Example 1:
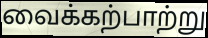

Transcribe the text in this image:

வைக்கற்பாற்று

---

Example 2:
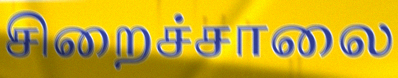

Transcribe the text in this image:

சிறைச்சாலை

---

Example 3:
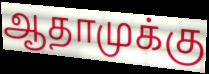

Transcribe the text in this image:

ஆதாமுக்கு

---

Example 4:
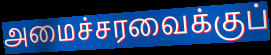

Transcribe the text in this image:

அமைச்சரவைக்குப்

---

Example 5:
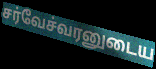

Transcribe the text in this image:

சர்வேச்வரனுடைய